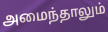
அமைந்தாலும்